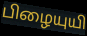
பிழையுயி